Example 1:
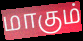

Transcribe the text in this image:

மாகும்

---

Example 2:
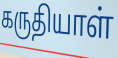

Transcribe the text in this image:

கருதியாள்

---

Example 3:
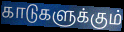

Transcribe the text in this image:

காடுகளுக்கும்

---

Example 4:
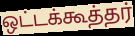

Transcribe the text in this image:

ஒட்டக்கூத்தர்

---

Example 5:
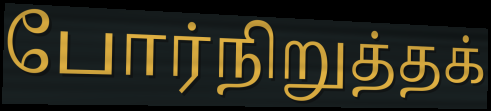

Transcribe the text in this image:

போர்நிறுத்தக்